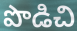
పొడిచి